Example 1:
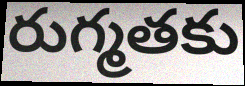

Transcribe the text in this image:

రుగ్మతకు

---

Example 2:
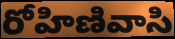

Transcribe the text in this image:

రోహిణివాసి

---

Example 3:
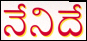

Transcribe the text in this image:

నేనిదే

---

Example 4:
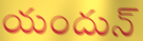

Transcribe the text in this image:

యందున్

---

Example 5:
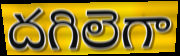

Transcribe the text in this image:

దగిలెగా